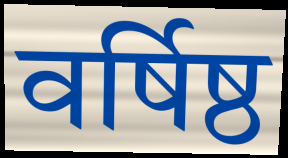
वर्षिष्ठ